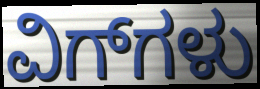
ವಿಗ್‌ಗಳು